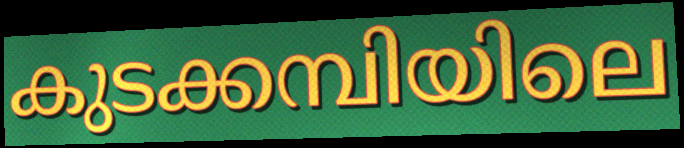
കുടക്കമ്പിയിലെ